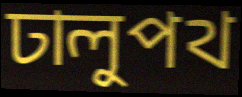
ঢালুপথ